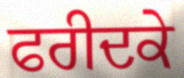
ਫਰੀਦਕੇ